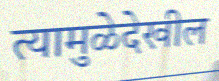
त्यामुळेदेखील